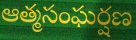
ఆత్మసంఘర్షణ